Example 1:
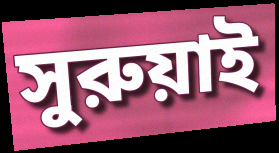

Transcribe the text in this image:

সুরুয়াই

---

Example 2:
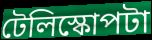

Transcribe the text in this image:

টেলিস্কোপটা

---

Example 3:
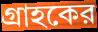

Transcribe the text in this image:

গ্রাহকের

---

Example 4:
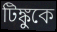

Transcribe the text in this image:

টিঙ্কুকে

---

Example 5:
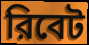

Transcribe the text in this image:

রিবেট